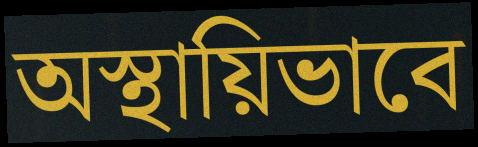
অস্থায়িভাবে